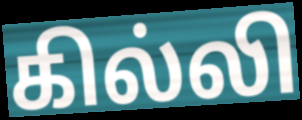
கில்லி